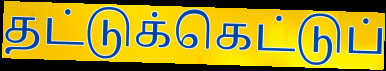
தட்டுக்கெட்டுப்